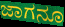
ಜಾಗನೂ